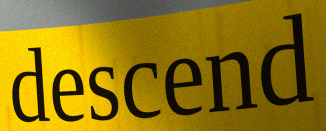
descend